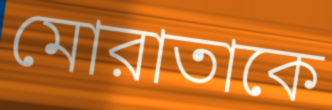
মোরাতাকে